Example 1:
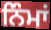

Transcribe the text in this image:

ਨਿੰਮਾਂ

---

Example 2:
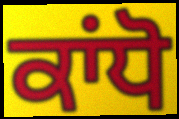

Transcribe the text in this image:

ਕਾਂਧੋ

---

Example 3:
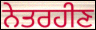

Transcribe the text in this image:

ਨੇਤਰਹੀਣ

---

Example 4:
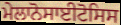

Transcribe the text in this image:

ਮੇਲਾਨੋਸਾਈਟੋਸਿਸ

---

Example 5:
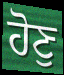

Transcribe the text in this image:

ਹੋਣੁ